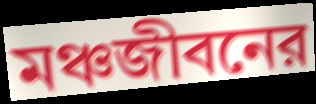
মঞ্চজীবনের